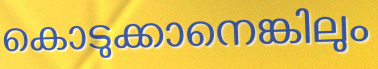
കൊടുക്കാനെങ്കിലും